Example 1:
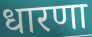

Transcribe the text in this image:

धारणा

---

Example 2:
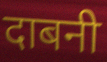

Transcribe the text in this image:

दाबनी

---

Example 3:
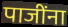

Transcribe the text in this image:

पाजींना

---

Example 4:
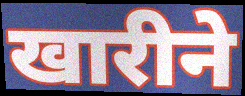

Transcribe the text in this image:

खारीने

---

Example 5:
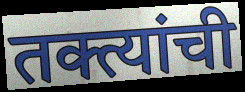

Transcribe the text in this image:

तक्त्यांची